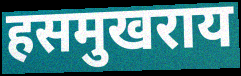
हसमुखराय